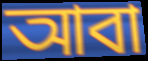
আবা